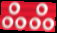
ஃஃ